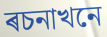
ৰচনাখনে